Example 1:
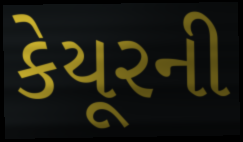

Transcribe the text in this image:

કેયૂરની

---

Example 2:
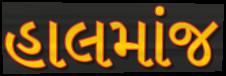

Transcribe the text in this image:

હાલમાંજ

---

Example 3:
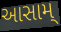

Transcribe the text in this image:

આસામ્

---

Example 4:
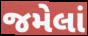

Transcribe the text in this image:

જમેલાં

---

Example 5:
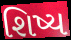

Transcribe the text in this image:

શિષ્ય